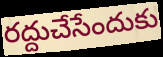
రద్దుచేసేందుకు